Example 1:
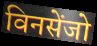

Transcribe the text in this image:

विनसेंजो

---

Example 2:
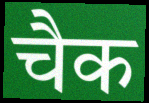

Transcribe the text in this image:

चैक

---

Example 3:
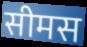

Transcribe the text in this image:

सीमस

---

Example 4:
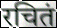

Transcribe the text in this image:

रचितं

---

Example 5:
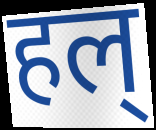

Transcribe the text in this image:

हल्